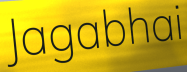
Jagabhai